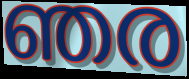
ഞര